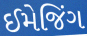
ઈમેજિંગ